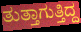
ತುತ್ತಾಗುತ್ತಿದ್ದ